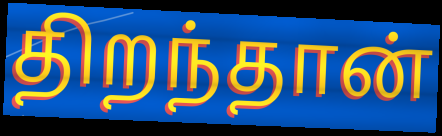
திறந்தான்